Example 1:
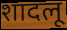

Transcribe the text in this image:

शादलू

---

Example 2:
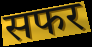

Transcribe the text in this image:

सफर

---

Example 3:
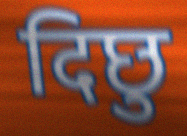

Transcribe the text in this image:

दिछु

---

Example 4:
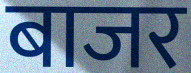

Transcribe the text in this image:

बाजर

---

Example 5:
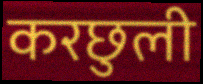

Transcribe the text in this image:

करछुली